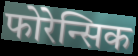
फोरेन्सिक